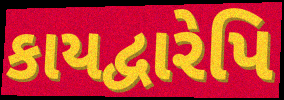
કાયદ્વારેપિ